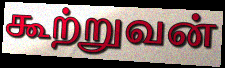
கூற்றுவன்